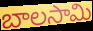
బాలసామి